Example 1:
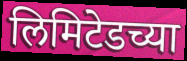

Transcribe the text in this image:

लिमिटेडच्या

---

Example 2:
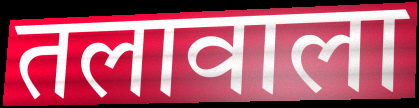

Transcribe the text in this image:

तलावाला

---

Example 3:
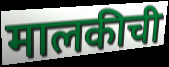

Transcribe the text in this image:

मालकीची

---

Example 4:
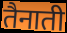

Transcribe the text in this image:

तैनाती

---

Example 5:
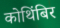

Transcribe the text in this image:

कोथिंबिर